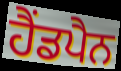
ਹੈਂਡਪੈਨ